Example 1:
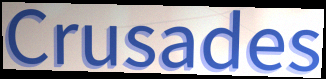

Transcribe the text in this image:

Crusades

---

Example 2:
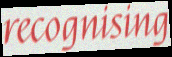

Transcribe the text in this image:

recognising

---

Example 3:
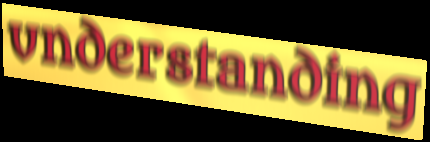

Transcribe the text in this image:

understanding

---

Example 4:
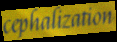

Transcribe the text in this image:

cephalization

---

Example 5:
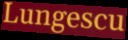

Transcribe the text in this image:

Lungescu